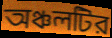
অঞ্চলটির